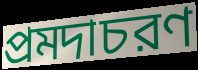
প্রমদাচরণ